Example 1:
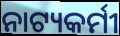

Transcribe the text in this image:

ନାଟ୍ୟକର୍ମୀ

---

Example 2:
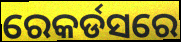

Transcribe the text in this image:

ରେକର୍ଡସରେ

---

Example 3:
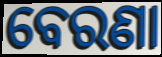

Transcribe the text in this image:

ବେରଣା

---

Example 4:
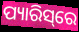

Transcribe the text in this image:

ପ୍ୟାରିସ୍‌ରେ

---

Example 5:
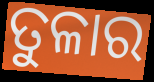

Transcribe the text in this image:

ତୁଳାର